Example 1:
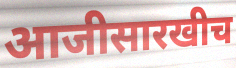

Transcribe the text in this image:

आजीसारखीच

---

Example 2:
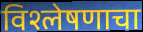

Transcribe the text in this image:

विश्लेषणाचा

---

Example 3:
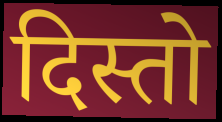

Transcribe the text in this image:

दिस्तो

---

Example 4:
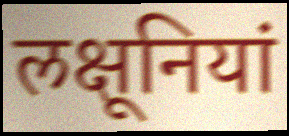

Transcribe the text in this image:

लक्षूनियां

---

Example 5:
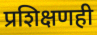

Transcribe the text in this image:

प्रशिक्षणही